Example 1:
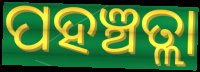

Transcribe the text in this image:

ପହଞ୍ଚତ୍ଲା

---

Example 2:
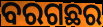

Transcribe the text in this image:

ବରଗଛର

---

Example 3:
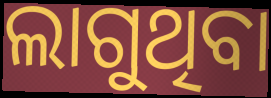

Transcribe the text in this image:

ଲାଗୁଥିବା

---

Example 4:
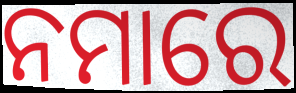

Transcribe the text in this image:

ନମାରେ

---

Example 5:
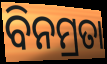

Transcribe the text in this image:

ବିନମ୍ରତା